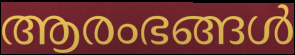
ആരംഭങ്ങൾ